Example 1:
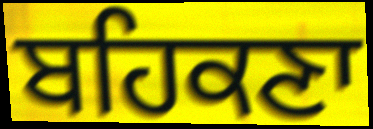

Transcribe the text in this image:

ਬਹਿਕਣਾ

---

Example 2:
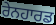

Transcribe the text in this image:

ਰੇਨਹਾਰਡ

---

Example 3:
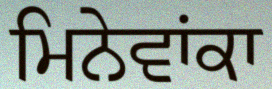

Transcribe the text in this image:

ਮਿਨੇਵਾਂਕਾ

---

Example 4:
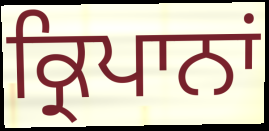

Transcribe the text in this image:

ਕ੍ਰਿਪਾਨਾਂ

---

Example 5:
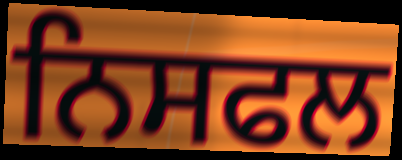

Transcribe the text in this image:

ਨਿਸਫਲ